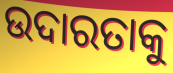
ଉଦାରତାକୁ